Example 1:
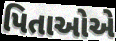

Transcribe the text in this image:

પિતાઓએ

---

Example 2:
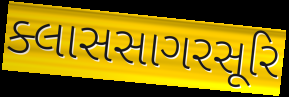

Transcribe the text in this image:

ક્લાસસાગરસૂરિ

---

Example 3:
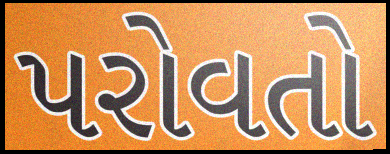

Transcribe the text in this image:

પરોવતો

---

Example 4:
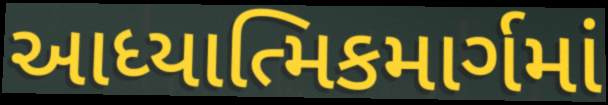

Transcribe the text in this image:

આધ્યાત્મિકમાર્ગમાં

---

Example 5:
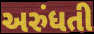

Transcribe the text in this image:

અરુંધતી